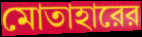
মোতাহারের